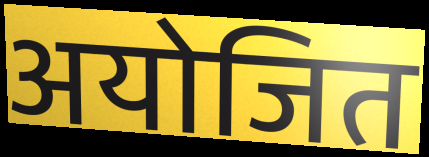
अयोजित